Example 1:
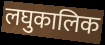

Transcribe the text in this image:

लघुकालिक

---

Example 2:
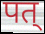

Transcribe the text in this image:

पत्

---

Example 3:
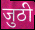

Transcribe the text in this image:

जुठी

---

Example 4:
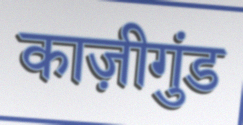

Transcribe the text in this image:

काज़ीगुंड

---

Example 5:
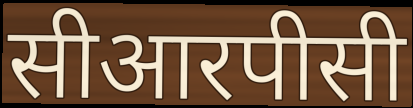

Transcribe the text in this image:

सीआरपीसी